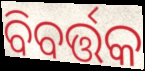
ବିବର୍ତ୍ତକ